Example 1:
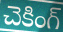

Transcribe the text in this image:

చెకింగ్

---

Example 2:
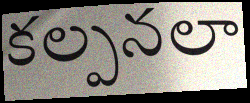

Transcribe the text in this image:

కల్పనలా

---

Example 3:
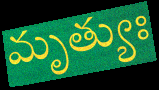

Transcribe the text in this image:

మృత్యుః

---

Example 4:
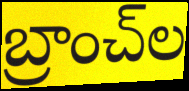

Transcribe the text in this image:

బ్రాంచ్‌ల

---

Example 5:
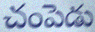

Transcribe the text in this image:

చంపెడు